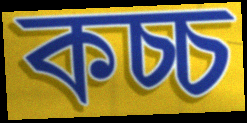
কচ্চ